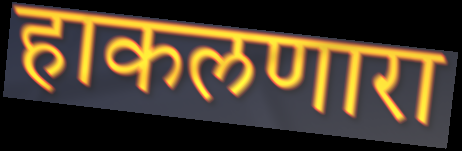
हाकलणारा